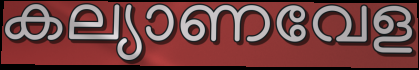
കല്യാണവേള